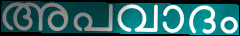
അപവാദം